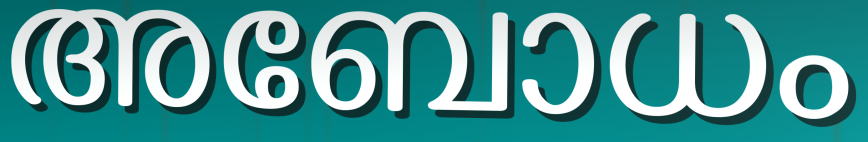
അബോധം